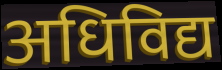
अधिविद्य